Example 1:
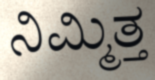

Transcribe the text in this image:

ನಿಮ್ಮಿತ್ತ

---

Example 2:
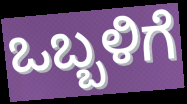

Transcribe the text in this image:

ಒಬ್ಬಳಿಗೆ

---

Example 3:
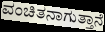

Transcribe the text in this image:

ವಂಚಿತನಾಗುತ್ತಾನೆ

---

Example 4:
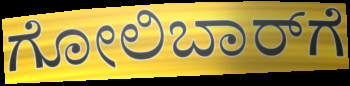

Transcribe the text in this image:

ಗೋಲಿಬಾರ್‌ಗೆ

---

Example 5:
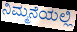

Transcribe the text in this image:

ನಿಮ್ಮನೆಯಲ್ಲಿ